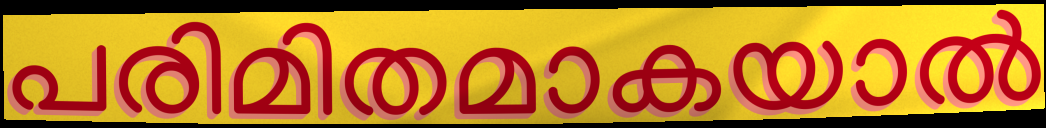
പരിമിതമാകയാൽ